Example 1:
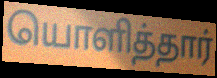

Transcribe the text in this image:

யொளித்தார்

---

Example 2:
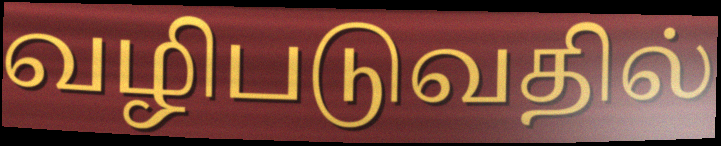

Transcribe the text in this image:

வழிபடுவதில்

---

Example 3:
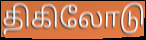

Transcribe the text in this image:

திகிலோடு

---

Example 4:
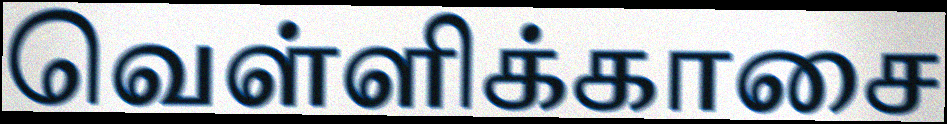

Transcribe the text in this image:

வெள்ளிக்காசை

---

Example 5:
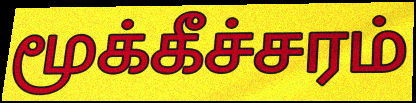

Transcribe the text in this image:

மூக்கீச்சரம்